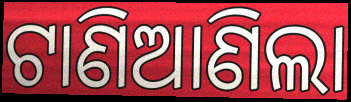
ଟାଣିଆଣିଲା